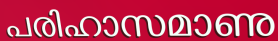
പരിഹാസമാണു